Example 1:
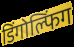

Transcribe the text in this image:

डिंगोल्फिंग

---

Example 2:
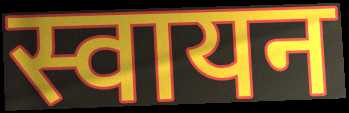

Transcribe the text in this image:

स्वायन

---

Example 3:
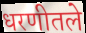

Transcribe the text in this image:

धरणीतले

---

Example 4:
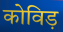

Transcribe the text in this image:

कोविड़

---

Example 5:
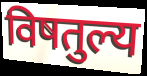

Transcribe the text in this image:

विषतुल्य